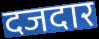
दजदार